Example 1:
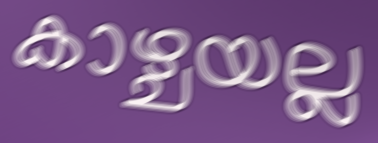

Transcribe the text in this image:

കാഴ്ചയല്ല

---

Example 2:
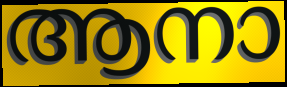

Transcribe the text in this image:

ആനാ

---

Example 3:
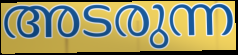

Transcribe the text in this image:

അടരുന്ന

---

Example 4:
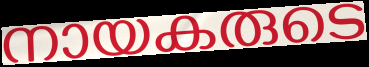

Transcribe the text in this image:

നായകരുടെ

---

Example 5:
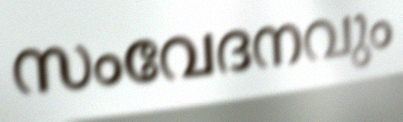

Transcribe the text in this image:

സംവേദനവും